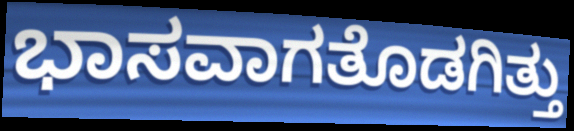
ಭಾಸವಾಗತೊಡಗಿತ್ತು